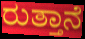
ರುತ್ತಾನೆ